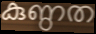
കുണ്ഠത